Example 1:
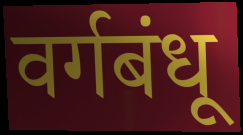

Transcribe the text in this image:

वर्गबंधू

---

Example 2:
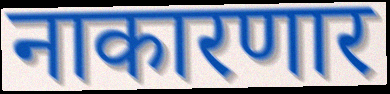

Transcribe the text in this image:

नाकारणार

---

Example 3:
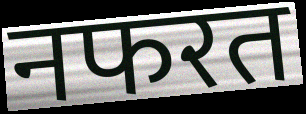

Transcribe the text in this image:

नफरत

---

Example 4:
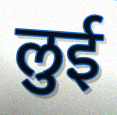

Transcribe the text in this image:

लुई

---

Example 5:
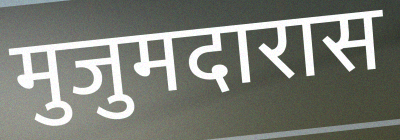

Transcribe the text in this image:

मुजुमदारास